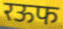
रऊफ